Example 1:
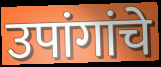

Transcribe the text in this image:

उपांगांचे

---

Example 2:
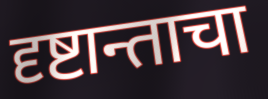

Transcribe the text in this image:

दृष्टान्ताचा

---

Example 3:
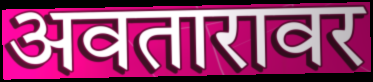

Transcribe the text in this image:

अवतारावर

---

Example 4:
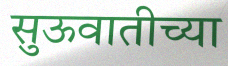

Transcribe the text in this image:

सुऊवातीच्या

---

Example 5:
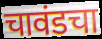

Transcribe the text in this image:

चावंडचा